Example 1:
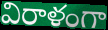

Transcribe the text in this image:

విరాళంగా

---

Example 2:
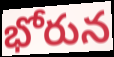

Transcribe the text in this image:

భోరున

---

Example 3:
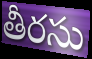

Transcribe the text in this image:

తీరసు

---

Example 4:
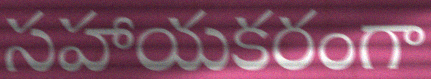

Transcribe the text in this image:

సహాయకరంగా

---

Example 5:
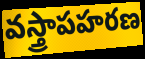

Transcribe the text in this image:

వస్త్రాపహరణ